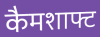
कैमशाफ्ट